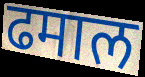
ढमाल